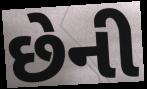
છેની